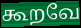
கூறவே